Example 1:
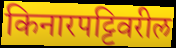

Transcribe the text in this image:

किनारपट्टिवरील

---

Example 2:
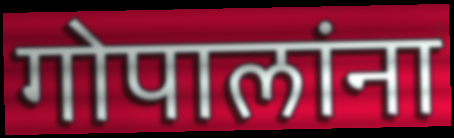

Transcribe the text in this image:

गोपालांना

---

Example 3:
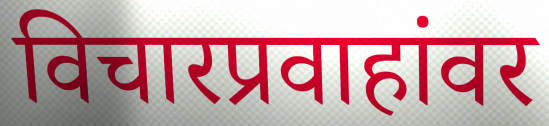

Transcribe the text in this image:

विचारप्रवाहांवर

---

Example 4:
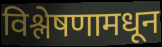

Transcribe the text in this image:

विश्लेषणामधून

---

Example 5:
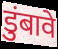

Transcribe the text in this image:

डुंबावे